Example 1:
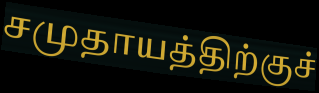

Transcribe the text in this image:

சமுதாயத்திற்குச்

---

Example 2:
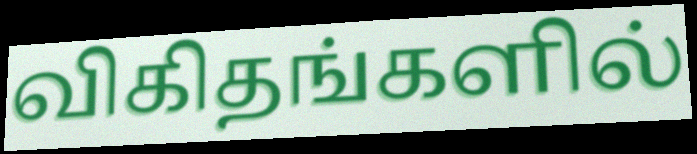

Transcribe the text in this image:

விகிதங்களில்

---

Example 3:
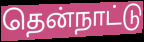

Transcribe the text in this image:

தென்நாட்டு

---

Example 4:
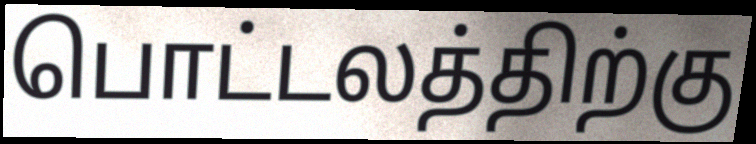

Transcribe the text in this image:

பொட்டலத்திற்கு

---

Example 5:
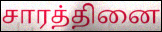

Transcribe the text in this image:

சாரத்தினை